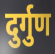
दुर्गुण